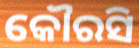
କୌରସି